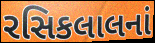
રસિકલાલનાં